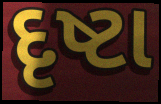
દૃષ્ટા